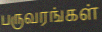
பருவரங்கள்